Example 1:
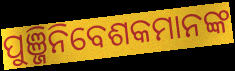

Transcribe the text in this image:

ପୁଞ୍ଜିନିବେଶକମାନଙ୍କ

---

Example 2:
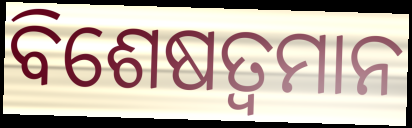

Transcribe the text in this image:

ବିଶେଷତ୍ଵମାନ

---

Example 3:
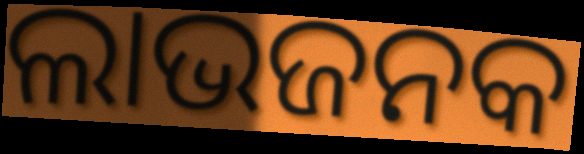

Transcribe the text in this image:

ଲାଭଜନକ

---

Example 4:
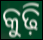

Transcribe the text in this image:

କୁଢ଼ି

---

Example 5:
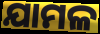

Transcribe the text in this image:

ଯାମଳ